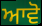
ਆਵੋ